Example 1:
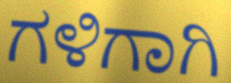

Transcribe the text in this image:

ಗಳಿಗಾಗಿ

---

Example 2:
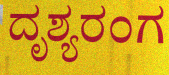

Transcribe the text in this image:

ದೃಶ್ಯರಂಗ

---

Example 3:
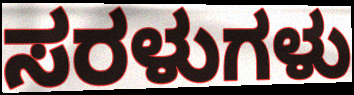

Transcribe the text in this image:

ಸರಳುಗಳು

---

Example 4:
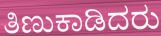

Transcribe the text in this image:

ತಿಣುಕಾಡಿದರು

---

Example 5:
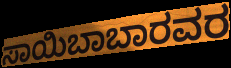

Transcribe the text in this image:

ಸಾಯಿಬಾಬಾರವರ